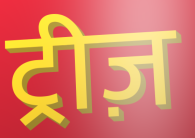
ट्रीज़